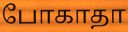
போகாதா